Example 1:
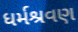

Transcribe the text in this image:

ધર્મશ્રવણ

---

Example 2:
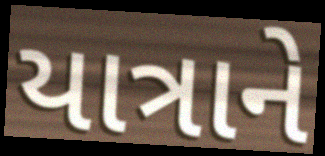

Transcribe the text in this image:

યાત્રાને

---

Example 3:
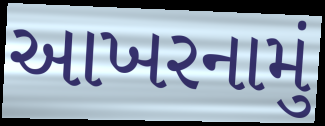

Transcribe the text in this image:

આખરનામું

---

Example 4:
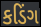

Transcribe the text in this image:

કડિંગ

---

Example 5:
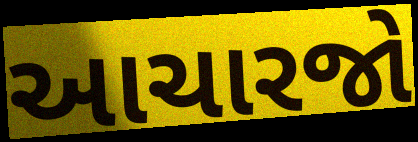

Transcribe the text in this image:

આચારજો